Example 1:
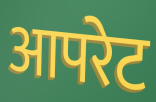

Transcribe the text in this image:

आपरेट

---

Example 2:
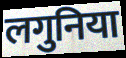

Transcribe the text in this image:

लगुनिया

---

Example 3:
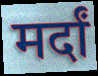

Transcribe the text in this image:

मर्दां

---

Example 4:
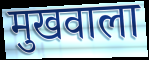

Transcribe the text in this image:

मुखवाला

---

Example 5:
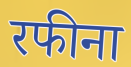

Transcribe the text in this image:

रफीना